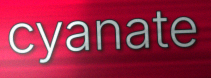
cyanate